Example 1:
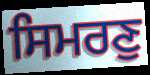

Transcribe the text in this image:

ਸਿਮਰਣੁ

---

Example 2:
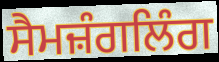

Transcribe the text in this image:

ਸੈਮਜ਼ੰਗਲਿੰਗ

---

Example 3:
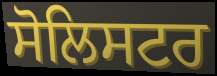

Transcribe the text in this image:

ਸੋਲਿਸਟਰ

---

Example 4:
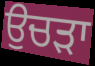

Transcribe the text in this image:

ਉਚੜਾ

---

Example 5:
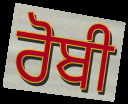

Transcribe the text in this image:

ਰੋਬੀ